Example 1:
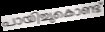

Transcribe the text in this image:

പായിച്ചുകൊണ്ട്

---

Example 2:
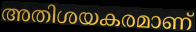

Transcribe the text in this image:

അതിശയകരമാണ്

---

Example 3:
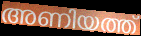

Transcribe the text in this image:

അണിയത്ത്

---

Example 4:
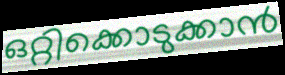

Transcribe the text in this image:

ഒറ്റിക്കൊടുക്കാൻ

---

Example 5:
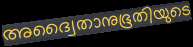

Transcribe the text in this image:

അദ്വൈതാനുഭൂതിയുടെ